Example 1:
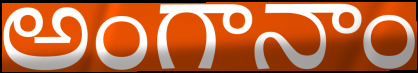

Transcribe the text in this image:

అంగానాం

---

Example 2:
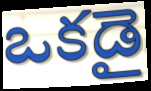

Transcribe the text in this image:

ఒకడై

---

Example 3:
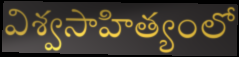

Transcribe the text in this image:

విశ్వసాహిత్యంలో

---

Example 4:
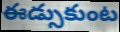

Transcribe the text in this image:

ఈడ్సుకుంట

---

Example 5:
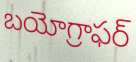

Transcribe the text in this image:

బయోగ్రాఫర్